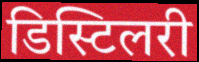
डिस्टिलरी